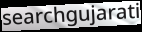
searchgujarati